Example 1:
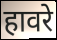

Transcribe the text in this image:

हावरे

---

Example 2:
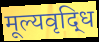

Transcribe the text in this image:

मूल्यवृद्धि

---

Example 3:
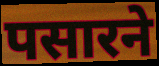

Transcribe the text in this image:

पसारने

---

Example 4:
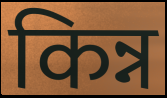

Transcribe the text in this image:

किन्न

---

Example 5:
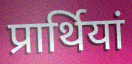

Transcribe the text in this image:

प्रार्थियां